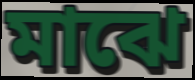
মাঝে